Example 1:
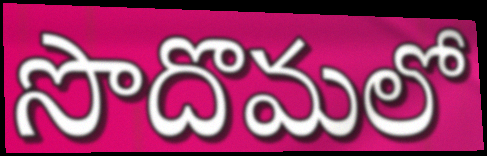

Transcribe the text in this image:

సొదొమలో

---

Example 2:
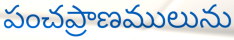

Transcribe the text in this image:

పంచప్రాణములును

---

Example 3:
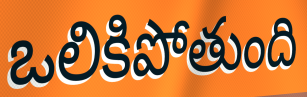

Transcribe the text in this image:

ఒలికిపోతుంది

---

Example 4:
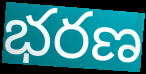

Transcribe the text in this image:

భరణ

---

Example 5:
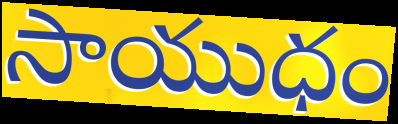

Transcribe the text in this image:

సాయుధం